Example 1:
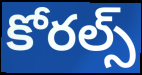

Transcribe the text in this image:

కోరల్స్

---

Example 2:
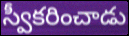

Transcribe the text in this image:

స్వీకరించాడు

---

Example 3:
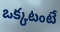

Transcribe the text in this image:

ఒక్కటంటే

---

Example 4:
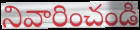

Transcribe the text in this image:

నివారించండి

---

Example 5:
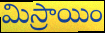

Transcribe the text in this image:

మిస్రాయిం